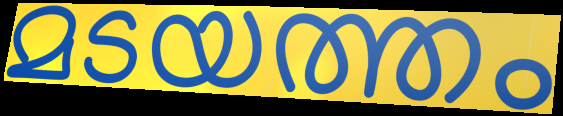
മടയത്തം